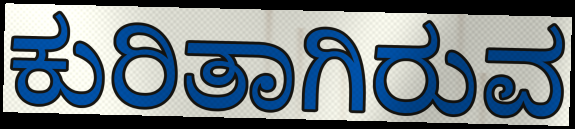
ಕುರಿತಾಗಿರುವ